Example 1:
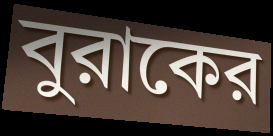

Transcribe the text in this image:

বুরাকের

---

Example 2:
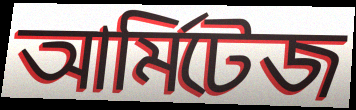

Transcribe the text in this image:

আর্মিটেজ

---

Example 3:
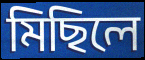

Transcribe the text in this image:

মিছিলে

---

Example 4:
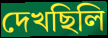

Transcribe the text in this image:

দেখছিলি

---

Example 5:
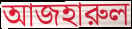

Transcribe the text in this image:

আজহারুল